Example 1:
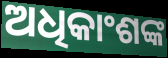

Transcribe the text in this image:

ଅଧିକାଂଶଙ୍କ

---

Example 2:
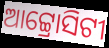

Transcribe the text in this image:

ଆଟ୍ଟ୍ରୋସିଟୀ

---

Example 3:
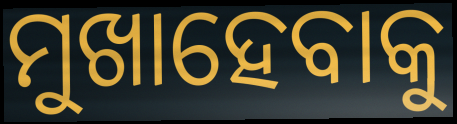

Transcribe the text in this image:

ମୁଖାହେବାକୁ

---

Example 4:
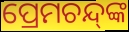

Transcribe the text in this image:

ପ୍ରେମଚନ୍ଦ୍‌ଙ୍କ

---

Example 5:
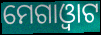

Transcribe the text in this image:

ମେଗାଓ୍ୱାଟ